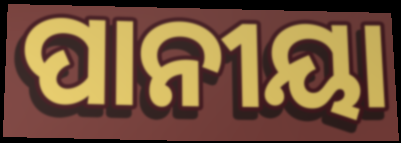
ପାନୀୟା